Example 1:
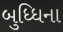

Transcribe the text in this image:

બુધ્ધિના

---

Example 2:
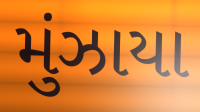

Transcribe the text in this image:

મુંઝાયા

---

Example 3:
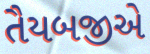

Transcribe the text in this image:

તૈયબજીએ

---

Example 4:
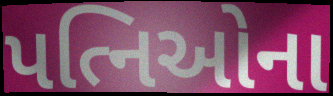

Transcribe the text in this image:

પત્નિઓના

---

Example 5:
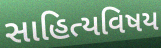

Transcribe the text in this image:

સાહિત્યવિષય